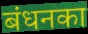
बंधनका